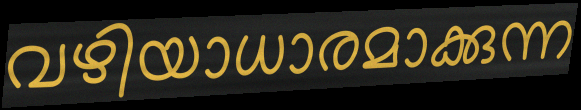
വഴിയാധാരമാക്കുന്ന